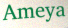
Ameya